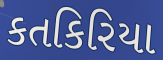
કતકિરિયા